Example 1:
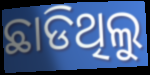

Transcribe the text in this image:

ଛାଡିଥିଲୁ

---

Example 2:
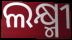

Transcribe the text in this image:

ଲକ୍ଷ୍ମୀ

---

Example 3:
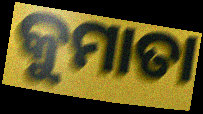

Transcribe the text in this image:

କୁମାତା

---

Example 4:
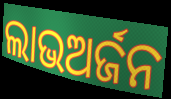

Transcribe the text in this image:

ଲାଭଅର୍ଜନ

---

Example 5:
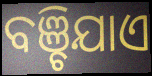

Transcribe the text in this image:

ବଞ୍ଚିଯାଏ